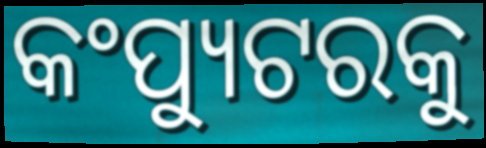
କଂପ୍ୟୁଟରକୁ